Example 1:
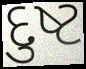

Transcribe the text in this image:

દુષ્ટ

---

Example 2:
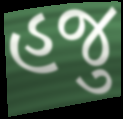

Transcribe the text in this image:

હજુ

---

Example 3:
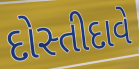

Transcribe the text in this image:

દોસ્તીદાવે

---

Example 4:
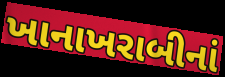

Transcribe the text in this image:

ખાનાખરાબીનાં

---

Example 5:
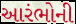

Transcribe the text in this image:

આરંભોની